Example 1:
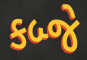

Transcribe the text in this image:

કબ્જે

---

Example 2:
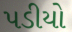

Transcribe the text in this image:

પડીયો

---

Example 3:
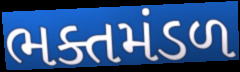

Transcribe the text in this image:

ભક્તમંડળ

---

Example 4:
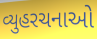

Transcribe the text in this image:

વ્યુહરચનાઓ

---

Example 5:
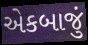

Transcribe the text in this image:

એકબાજું